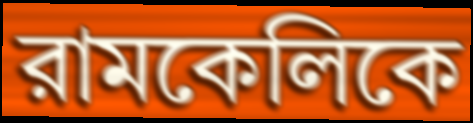
রামকেলিকে